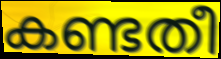
കണ്ടതീ